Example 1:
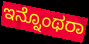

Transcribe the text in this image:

ಇನ್ನೊಂಥರಾ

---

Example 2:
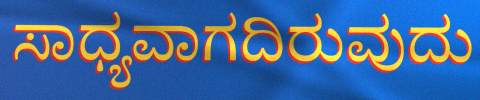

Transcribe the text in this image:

ಸಾಧ್ಯವಾಗದಿರುವುದು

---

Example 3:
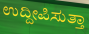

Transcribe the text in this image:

ಉದ್ದೀಪಿಸುತ್ತಾ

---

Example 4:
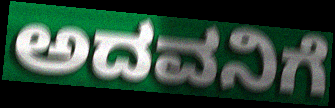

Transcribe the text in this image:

ಅದವನಿಗೆ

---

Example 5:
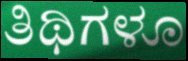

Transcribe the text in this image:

ತಿಥಿಗಳೂ